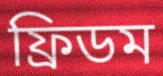
ফ্রিডম